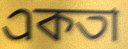
একতা